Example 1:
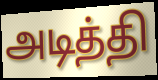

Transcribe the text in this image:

அடித்தி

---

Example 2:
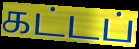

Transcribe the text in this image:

கட்டப்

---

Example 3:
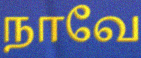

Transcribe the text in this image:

நாவே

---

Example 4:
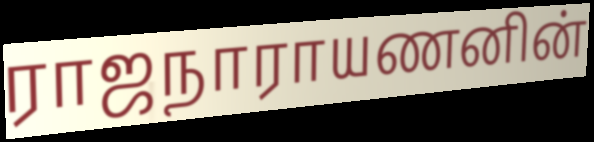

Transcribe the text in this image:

ராஜநாராயணனின்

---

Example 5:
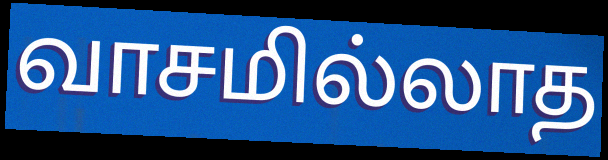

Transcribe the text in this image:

வாசமில்லாத